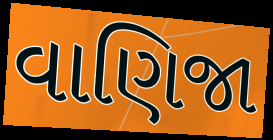
વાણિજા